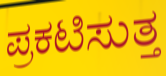
ಪ್ರಕಟಿಸುತ್ತ